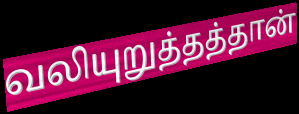
வலியுறுத்தத்தான்